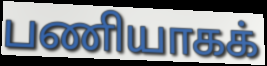
பணியாகக்